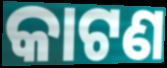
କାଟଣ